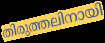
തിരുത്തലിനായി